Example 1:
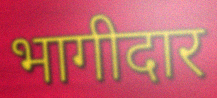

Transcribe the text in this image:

भागीदार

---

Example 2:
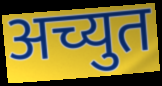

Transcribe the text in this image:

अच्‍युत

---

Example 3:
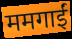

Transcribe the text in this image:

ममगाईं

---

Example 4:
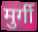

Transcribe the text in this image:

मुर्गी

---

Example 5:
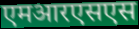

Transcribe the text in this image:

एमआरएसएस